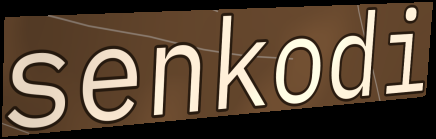
senkodi